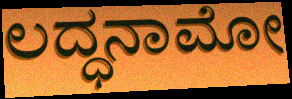
ಲದ್ಧನಾಮೋ